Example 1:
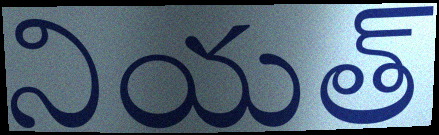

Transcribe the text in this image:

నియత్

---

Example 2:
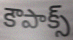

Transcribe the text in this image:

కౌపాక్స్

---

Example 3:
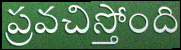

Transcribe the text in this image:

ప్రవచిస్తోంది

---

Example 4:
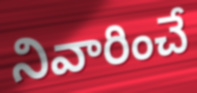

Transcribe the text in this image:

నివారించే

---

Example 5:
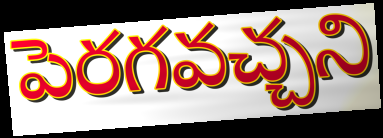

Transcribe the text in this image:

పెరగవచ్చని